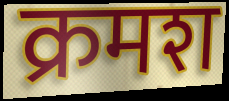
क्रमश